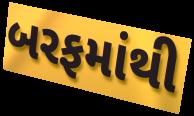
બરફમાંથી